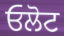
ਓਲੋਟ